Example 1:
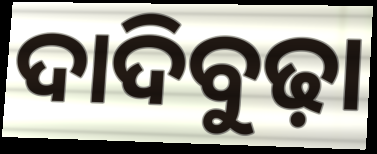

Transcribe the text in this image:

ଦାଦିବୁଢ଼ା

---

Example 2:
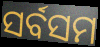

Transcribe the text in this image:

ସର୍ବସମ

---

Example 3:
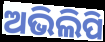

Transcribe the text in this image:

ଅଭିଲିପି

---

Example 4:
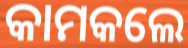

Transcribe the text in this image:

କାମକଲେ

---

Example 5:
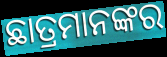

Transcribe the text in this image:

ଛାତ୍ରମାନଙ୍କର